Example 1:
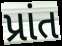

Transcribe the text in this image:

પ્રાંત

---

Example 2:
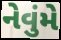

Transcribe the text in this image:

નેવુંમે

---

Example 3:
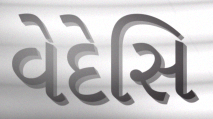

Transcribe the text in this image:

વેદેસિ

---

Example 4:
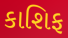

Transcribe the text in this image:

કાશિફ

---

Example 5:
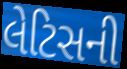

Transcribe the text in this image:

લેટિસની